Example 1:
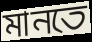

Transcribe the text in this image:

মানতে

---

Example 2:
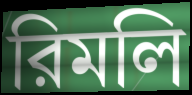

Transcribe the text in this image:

রিমলি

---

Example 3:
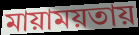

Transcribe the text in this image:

মায়াময়তায়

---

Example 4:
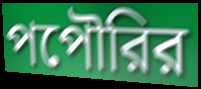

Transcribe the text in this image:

পপৌরির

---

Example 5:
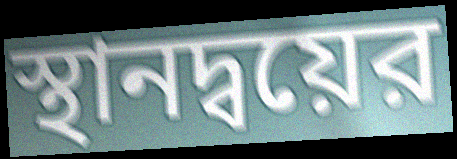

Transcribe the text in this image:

স্থানদ্বয়ের